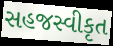
સહજસ્વીકૃત